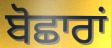
ਬੋਛਾਰਾਂ